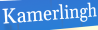
Kamerlingh